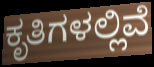
ಕೃತಿಗಳಲ್ಲಿವೆ